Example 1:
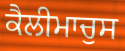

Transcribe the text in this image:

ਕੈਲੀਮਾਚੁਸ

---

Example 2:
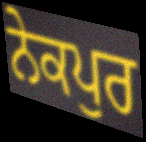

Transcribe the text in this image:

ਨੇਕਪੁਰ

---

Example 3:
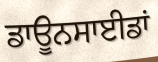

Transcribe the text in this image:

ਡਾਊਨਸਾਈਡਾਂ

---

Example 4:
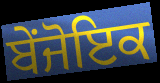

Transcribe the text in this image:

ਬੇਂਜੋਇਕ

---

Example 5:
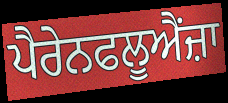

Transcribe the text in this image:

ਪੈਰੇਨਫਲੂਐਂਜ਼ਾ